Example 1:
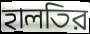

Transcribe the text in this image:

হালতির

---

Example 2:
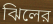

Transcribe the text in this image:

ঝিলের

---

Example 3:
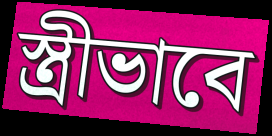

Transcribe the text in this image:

স্ত্রীভাবে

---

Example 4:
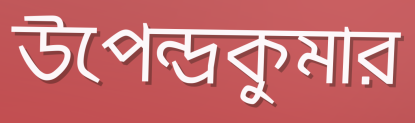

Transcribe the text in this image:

উপেন্দ্রকুমার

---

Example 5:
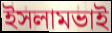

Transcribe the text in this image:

ইসলামভাই